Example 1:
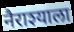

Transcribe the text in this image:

नैराश्याला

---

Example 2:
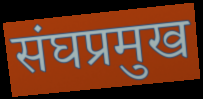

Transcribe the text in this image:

संघप्रमुख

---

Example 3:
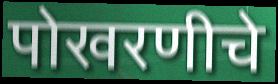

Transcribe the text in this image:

पोखरणीचे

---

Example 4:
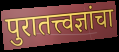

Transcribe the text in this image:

पुरातत्त्वज्ञांचा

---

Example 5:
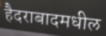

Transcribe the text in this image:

हैदराबादमधील